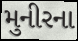
મુનીરના